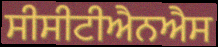
ਸੀਸੀਟੀਐਨਐਸ